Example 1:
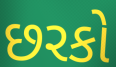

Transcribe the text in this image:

છરકો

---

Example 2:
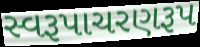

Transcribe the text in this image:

સ્વરૂપાચરણરૂપ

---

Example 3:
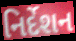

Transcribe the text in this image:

નિર્દેશન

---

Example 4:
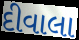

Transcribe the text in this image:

દીવાલા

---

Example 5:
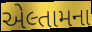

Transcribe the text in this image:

એલ્તામના